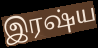
இரஷ்ய